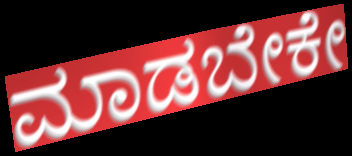
ಮಾಡಬೇಕೇ